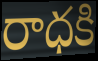
రాధకి